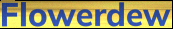
Flowerdew